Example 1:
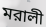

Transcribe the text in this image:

মরালী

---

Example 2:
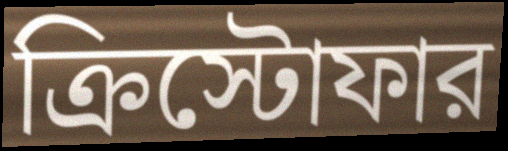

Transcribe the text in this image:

ক্রিস্টোফার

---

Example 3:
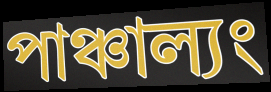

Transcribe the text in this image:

পাঞ্চাল্যং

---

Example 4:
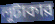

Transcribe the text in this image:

লুটাকার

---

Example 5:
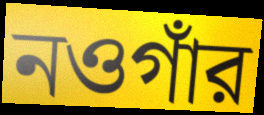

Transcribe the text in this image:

নওগাঁর